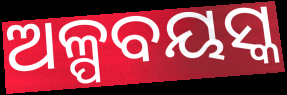
ଅଳ୍ପବୟସ୍କ